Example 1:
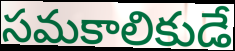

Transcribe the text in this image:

సమకాలికుడే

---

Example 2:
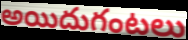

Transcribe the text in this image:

అయిదుగంటలు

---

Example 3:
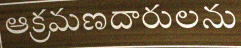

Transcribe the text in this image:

ఆక్రమణదారులను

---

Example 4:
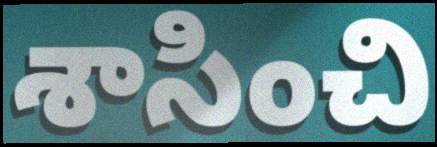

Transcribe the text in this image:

శాసించి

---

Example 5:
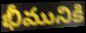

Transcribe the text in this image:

భీమునికి